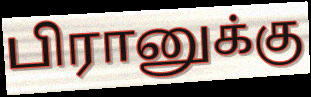
பிரானுக்கு